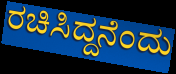
ರಚಿಸಿದ್ದನೆಂದು